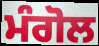
ਮੰਗੋਲ